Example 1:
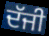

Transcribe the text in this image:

ਦੱਜੀ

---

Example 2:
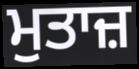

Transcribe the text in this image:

ਮੁਤਾਜ਼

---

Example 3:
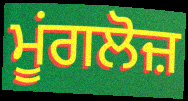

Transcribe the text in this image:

ਮੂਂਗਲੋਜ਼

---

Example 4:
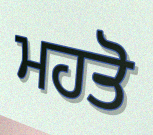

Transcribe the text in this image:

ਮਹਤੋ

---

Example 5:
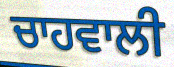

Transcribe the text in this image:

ਚਾਹਵਾਲੀ